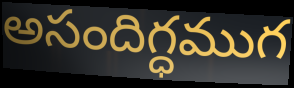
అసందిగ్ధముగ